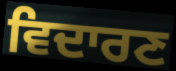
ਵਿਦਾਰਣ